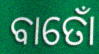
ବାତୋଁ